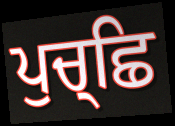
ਪੁਚ੍ਛਿ